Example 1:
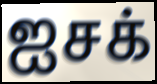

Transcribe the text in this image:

ஐசக்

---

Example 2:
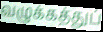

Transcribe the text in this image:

வழுக்கத்துப்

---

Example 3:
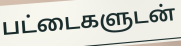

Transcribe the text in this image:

பட்டைகளுடன்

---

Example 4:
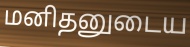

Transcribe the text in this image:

மனிதனுடைய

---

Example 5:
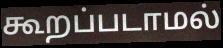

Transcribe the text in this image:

கூறப்படாமல்